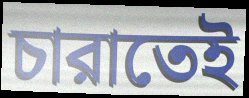
চারাতেই